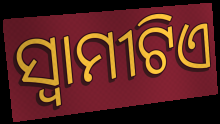
ସ୍ୱାମୀଟିଏ